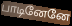
பாடினேனே